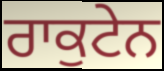
ਰਾਕੁਟੇਨ